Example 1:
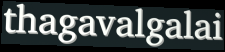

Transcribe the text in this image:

thagavalgalai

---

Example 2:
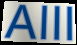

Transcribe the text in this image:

AIII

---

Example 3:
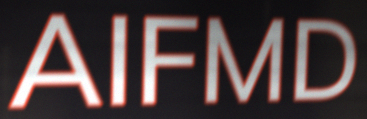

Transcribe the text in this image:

AIFMD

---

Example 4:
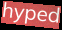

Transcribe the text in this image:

hyped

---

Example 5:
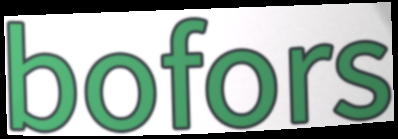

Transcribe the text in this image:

bofors